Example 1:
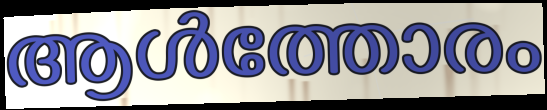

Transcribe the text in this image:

ആൾത്തോരം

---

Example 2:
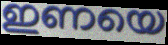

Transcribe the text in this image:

ഇണയെ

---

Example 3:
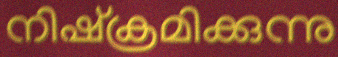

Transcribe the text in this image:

നിഷ്ക്രമിക്കുന്നു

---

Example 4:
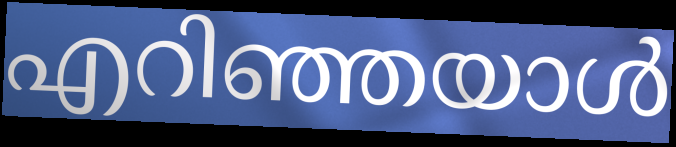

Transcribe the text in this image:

എറിഞ്ഞയാൾ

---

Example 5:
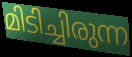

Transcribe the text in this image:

മിടിച്ചിരുന്ന